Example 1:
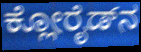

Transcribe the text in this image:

ಕ್ಲೋರೈಡ್‍ನ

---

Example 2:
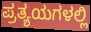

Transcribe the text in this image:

ಪ್ರತ್ಯಯಗಳಲ್ಲಿ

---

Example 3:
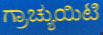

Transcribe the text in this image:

ಗ್ರಾಚ್ಯುಯಿಟಿ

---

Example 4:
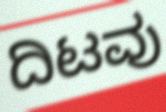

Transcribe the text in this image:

ದಿಟವು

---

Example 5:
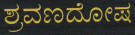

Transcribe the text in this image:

ಶ್ರವಣದೋಷ